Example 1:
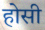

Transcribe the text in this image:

होसी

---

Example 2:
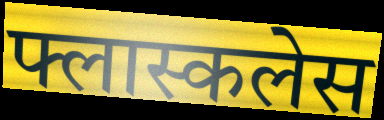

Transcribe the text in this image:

फ्लास्कलेस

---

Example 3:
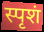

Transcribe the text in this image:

स्पृशं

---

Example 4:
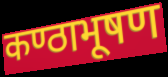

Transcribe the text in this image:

कण्ठाभूषण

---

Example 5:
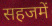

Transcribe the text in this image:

सहजमें